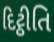
દિટ્ઠીતિ